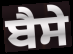
ਬੈਸੇ